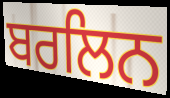
ਬਰਲਿਨ